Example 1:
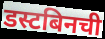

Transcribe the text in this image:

डस्टबिनची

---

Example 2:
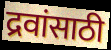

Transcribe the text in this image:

द्रवांसाठी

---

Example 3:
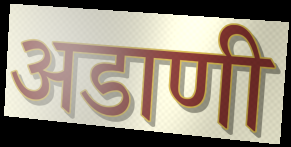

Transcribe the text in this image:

अडाणी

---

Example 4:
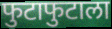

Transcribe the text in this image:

फुटाफुटाला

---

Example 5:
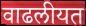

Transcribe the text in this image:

वाढलीयत